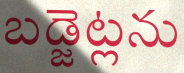
బడ్జెట్లను